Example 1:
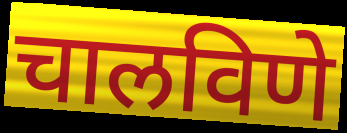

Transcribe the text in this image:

चालविणे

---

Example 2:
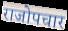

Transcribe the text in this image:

राजोपचार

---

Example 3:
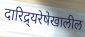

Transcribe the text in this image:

दारिद्र्यरेषेखालील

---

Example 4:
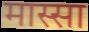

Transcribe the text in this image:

मास्सा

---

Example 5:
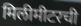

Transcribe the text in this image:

मिलीमीटरची